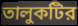
তালুকটির